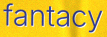
fantacy